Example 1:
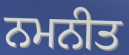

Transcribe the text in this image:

ਨਮਨੀਤ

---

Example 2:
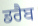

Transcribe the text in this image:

ਡਰੈਬ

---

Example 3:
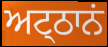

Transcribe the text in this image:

ਅਟ੍ਠਾਨਂ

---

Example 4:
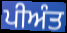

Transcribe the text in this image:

ਪੀਅੰਤ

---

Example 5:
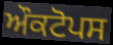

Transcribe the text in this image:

ਔਕਟੋਪਸ